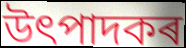
উৎপাদকৰ